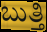
ಬುತ್ತಿ